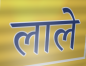
लाले